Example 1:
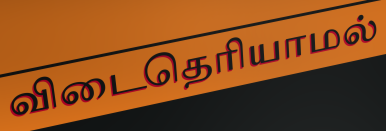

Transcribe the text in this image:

விடைதெரியாமல்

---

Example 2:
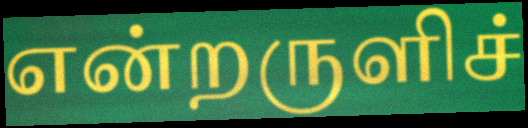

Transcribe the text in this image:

என்றருளிச்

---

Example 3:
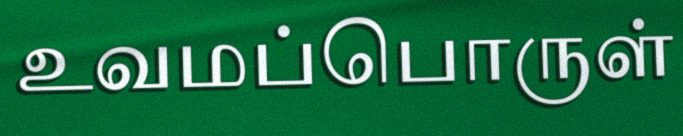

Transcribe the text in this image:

உவமப்பொருள்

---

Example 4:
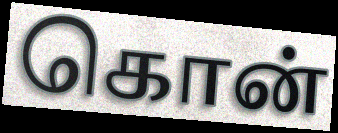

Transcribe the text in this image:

கொன்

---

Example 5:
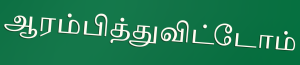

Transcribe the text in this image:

ஆரம்பித்துவிட்டோம்